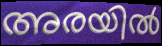
അരയിൽ